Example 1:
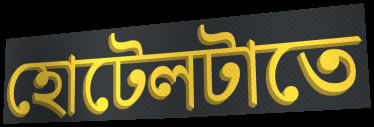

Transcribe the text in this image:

হোটেলটাতে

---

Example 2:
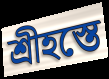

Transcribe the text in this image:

শ্রীহস্তে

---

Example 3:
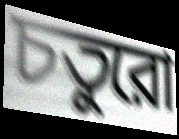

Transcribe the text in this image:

চতুরো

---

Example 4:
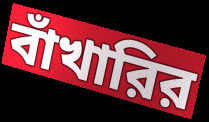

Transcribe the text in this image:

বাঁখারির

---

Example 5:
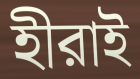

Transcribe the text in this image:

হীরাই